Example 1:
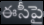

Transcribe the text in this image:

ఈసీపై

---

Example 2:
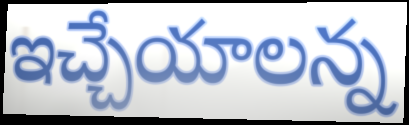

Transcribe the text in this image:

ఇచ్చేయాలన్న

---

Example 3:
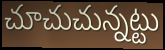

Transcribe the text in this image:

చూచుచున్నట్టు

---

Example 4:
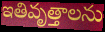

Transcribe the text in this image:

ఇతివృత్తాలను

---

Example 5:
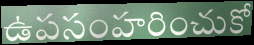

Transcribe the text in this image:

ఉపసంహరించుకో